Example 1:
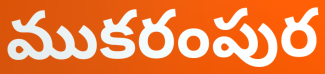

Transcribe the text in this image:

ముకరంపుర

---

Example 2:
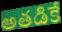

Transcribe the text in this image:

అతడికే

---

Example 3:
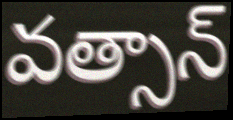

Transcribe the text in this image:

వత్సాన్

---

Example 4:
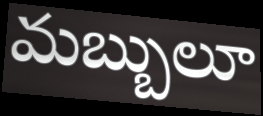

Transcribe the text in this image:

మబ్బులూ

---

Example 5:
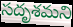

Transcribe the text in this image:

సదృశమని